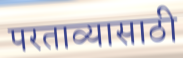
परताव्यासाठी